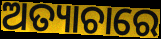
ଅତ୍ୟାଚାରେ